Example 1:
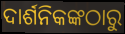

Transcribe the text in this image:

ଦାର୍ଶନିକଙ୍କଠାରୁ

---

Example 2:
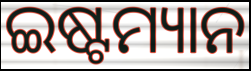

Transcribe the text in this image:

ଇଷ୍ଟମ୍ୟାନ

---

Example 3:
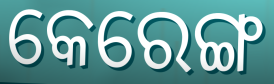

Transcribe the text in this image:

କେରେଙ୍ଗ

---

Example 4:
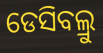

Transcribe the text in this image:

ଡେସିବଲ୍ରୁ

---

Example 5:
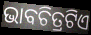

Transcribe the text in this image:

ଭାବଚିତ୍ରଟିଏ